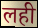
लही